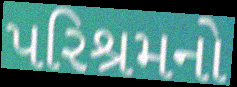
પરિશ્રમનો